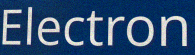
Electron